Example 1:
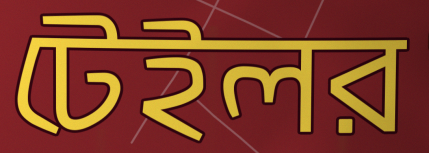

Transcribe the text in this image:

টেইলর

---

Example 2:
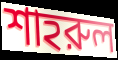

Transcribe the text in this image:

শাহরুল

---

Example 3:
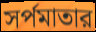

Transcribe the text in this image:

সর্পমাতার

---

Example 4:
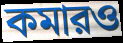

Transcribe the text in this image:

কমারও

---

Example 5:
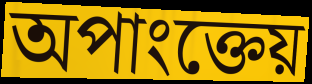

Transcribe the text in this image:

অপাংক্তেয়